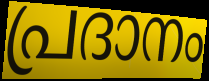
പ്രദാനം